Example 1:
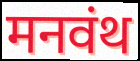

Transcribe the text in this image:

मनवंथ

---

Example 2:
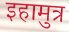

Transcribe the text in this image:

इहामुत्र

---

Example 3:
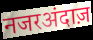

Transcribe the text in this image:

नजरअंदाज़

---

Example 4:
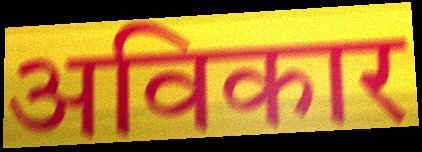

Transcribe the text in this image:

अविकार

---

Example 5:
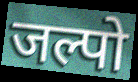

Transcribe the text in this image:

जल्पो